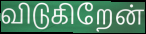
விடுகிறேன்